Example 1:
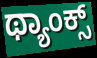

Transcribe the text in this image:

ಥ್ಯಾಂಕ್ಸ್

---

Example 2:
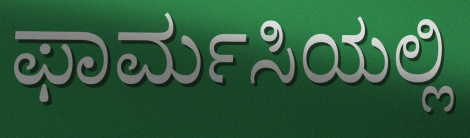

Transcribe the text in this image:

ಫಾರ್ಮಸಿಯಲ್ಲಿ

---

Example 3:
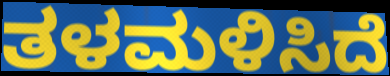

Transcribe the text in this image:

ತಳಮಳಿಸಿದೆ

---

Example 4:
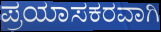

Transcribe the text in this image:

ಪ್ರಯಾಸಕರವಾಗಿ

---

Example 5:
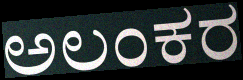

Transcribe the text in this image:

ಅಲಂಕರ